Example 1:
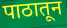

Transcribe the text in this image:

पाठातून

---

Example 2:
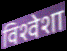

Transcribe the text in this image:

विश्वेशा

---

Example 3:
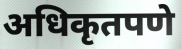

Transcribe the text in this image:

अधिकृतपणे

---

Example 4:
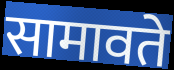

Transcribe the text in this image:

सामावते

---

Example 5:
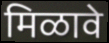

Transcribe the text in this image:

मिळावे